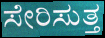
ಸೇರಿಸುತ್ತ